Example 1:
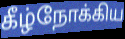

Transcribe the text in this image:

கீழ்நோக்கிய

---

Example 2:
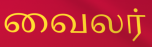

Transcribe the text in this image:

வைலர்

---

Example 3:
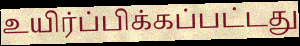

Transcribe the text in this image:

உயிர்ப்பிக்கப்பட்டது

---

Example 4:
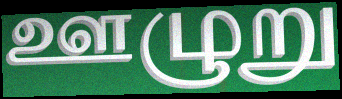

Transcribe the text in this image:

ஊழுறு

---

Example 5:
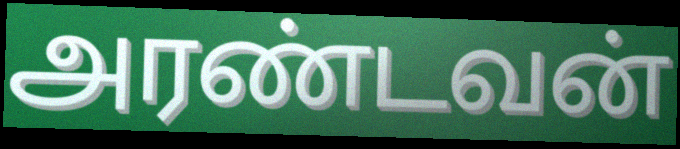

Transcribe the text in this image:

அரண்டவன்